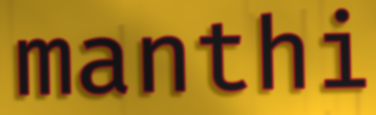
manthi